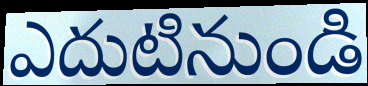
ఎదుటినుండి